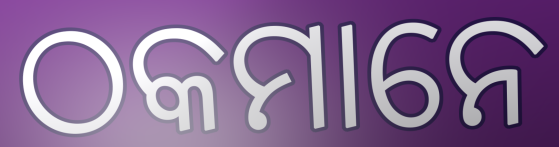
ଠକମାନେ